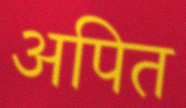
अपित